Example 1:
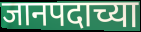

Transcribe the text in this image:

जानपदाच्या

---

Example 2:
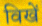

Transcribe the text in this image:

विखें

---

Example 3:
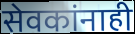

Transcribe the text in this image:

सेवकांनाही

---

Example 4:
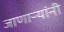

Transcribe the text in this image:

जाणाऱ्यांनी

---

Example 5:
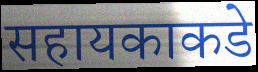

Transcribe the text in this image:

सहायकाकडे